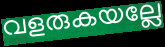
വളരുകയല്ലേ